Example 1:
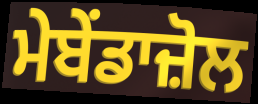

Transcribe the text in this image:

ਮੇਬੇਂਡਾਜ਼ੋਲ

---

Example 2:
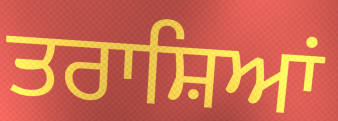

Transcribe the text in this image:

ਤਰਾਸ਼ਿਆਂ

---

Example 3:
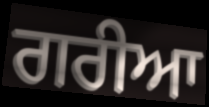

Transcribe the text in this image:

ਗਰੀਆ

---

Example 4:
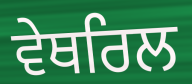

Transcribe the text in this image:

ਵੇਥਰਿਲ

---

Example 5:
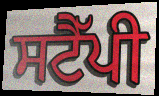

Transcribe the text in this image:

ਸਟੈੱਪੀ